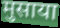
मुसाया